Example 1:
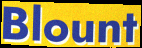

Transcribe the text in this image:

Blount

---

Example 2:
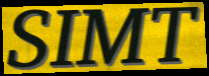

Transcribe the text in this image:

SIMT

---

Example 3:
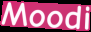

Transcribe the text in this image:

Moodi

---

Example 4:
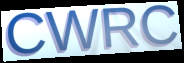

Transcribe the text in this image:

CWRC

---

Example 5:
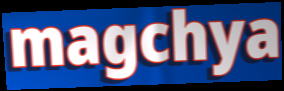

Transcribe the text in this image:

magchya